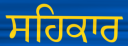
ਸਹਿਕਾਰ